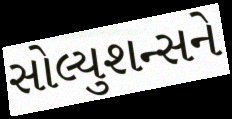
સોલ્યુશન્સને